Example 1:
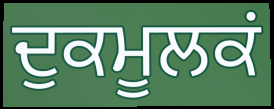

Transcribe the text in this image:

ਦੁਕਮੂਲਕਂ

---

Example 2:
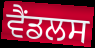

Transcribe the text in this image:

ਵੈਂਡਲਸ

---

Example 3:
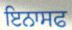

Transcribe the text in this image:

ਇਨਾਸਫ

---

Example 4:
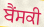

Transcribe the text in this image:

ਬੈਂਸਕੀ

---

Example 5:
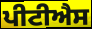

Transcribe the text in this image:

ਪੀਟੀਐਸ